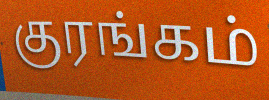
குரங்கம்